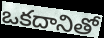
ఒకదానితో